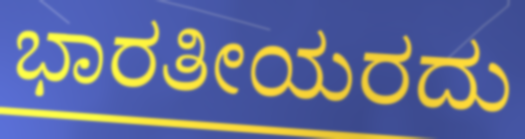
ಭಾರತೀಯರದು